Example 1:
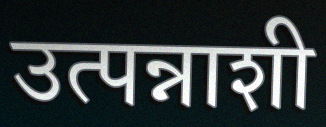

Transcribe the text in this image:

उत्पन्नाशी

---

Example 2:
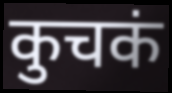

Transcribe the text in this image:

कुचकं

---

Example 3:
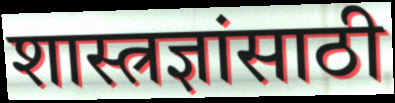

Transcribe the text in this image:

शास्त्रज्ञांसाठी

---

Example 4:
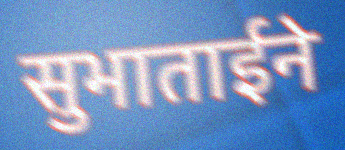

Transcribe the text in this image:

सुभाताईने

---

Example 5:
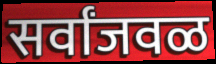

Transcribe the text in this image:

सर्वांजवळ